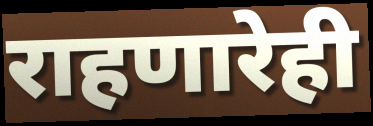
राहणारेही